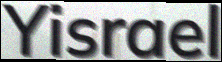
Yisrael